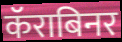
कॅराबिनर